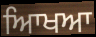
ਆਿਖਆ